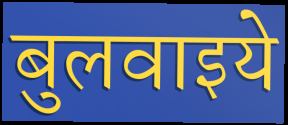
बुलवाइये